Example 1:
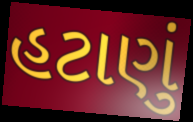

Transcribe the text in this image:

હટાણું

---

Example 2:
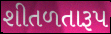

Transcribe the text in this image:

શીતળતારૂપ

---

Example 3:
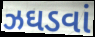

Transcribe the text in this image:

ઝઘડવાં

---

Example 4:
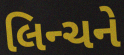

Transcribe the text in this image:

લિન્ચને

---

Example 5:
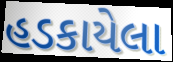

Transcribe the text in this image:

હડકાયેલા